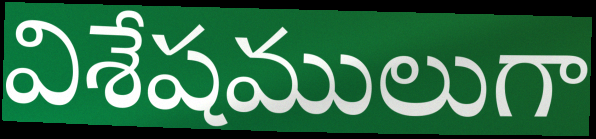
విశేషములుగా